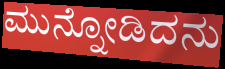
ಮುನ್ನೋಡಿದನು